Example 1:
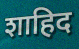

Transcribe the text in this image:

शाहिद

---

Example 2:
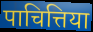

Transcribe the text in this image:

पाचित्तिया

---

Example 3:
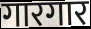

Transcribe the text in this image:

गारगार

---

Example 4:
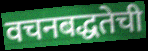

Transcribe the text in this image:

वचनबद्धतेची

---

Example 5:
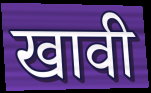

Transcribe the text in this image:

खावी